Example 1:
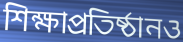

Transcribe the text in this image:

শিক্ষাপ্রতিষ্ঠানও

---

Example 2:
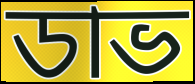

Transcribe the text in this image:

ডাভ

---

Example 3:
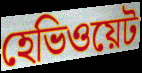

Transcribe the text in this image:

হেভিওয়েট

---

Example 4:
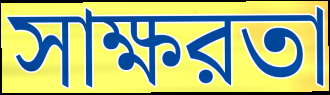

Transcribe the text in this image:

সাক্ষরতা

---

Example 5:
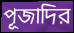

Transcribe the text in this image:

পূজাদির